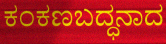
ಕಂಕಣಬದ್ಧನಾದ